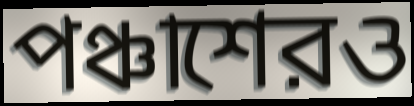
পঞ্চাশেরও